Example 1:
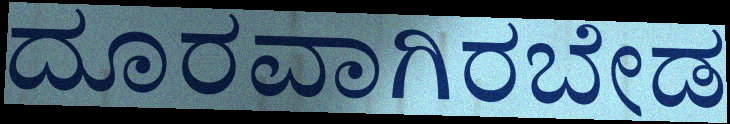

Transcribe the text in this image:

ದೂರವಾಗಿರಬೇಡ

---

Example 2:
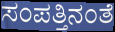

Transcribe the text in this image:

ಸಂಪತ್ತಿನಂತೆ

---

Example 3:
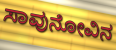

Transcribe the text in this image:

ಸಾವುನೋವಿನ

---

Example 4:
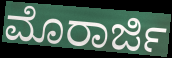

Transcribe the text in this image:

ಮೊರಾರ್ಜಿ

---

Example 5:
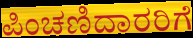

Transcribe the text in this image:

ಪಿಂಚಣಿದಾರರಿಗೆ